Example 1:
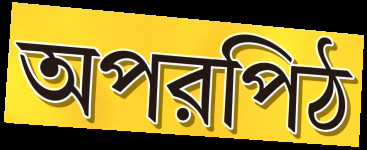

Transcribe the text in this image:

অপরপিঠ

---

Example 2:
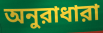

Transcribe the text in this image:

অনুরাধারা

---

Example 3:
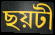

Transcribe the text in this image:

ছয়টী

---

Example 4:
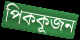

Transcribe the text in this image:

পিককূজন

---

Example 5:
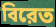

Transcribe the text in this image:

বিরেত